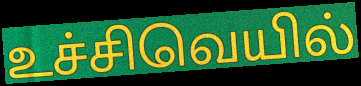
உச்சிவெயில்